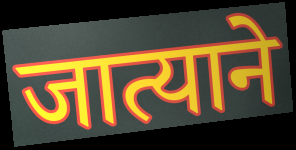
जात्याने